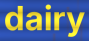
dairy